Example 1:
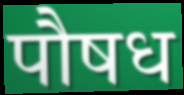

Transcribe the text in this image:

पौषध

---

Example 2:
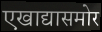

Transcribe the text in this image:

एखाद्यासमोर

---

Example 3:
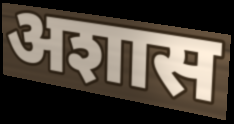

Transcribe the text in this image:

अशास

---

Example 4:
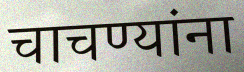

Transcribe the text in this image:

चाचण्यांना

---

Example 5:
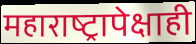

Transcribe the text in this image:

महाराष्ट्रापेक्षाही